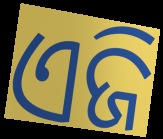
ଏଜି